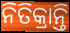
ନିତିକ୍ରାନ୍ତି